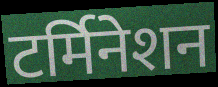
टर्मिनेशन